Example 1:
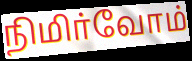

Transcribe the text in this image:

நிமிர்வோம்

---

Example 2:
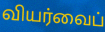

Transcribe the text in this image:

வியர்வைப்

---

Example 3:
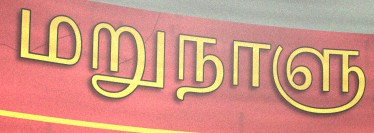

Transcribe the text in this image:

மறுநாளு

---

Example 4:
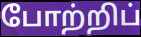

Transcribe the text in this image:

போற்றிப்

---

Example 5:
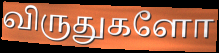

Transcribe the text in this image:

விருதுகளோ